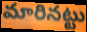
మారినట్టు